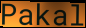
Pakal